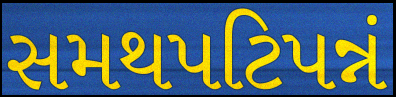
સમથપટિપન્નં